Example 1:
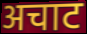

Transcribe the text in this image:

अचाट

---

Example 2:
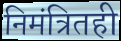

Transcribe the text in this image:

निमंत्रितही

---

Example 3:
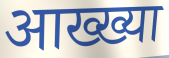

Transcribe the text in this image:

आख्ख्या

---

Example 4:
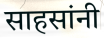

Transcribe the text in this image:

साहसांनी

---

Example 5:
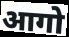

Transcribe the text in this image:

आगो